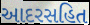
આદરસહિત